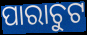
ପାରାଚୁଟ